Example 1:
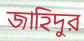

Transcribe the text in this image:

জাহিদুর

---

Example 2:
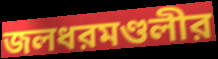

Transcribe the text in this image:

জলধরমণ্ডলীর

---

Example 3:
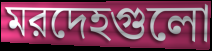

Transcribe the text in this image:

মরদেহগুলো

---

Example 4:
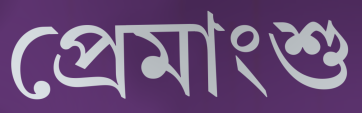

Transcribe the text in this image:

প্রেমাংশু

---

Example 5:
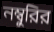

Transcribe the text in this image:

নম্বুরির